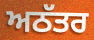
ਅਠੱਤਰ